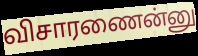
விசாரணைன்னு